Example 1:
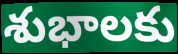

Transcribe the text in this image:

శుభాలకు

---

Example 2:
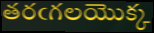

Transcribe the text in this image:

తరఁగలయొక్క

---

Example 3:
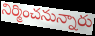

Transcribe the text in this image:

నిర్మించనున్నారు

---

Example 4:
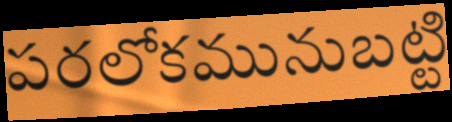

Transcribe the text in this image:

పరలోకమునుబట్టి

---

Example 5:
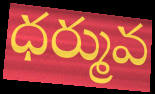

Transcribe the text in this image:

ధర్మువ